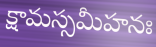
క్షామస్సమీహనః